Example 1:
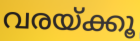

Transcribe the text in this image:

വരയ്ക്കൂ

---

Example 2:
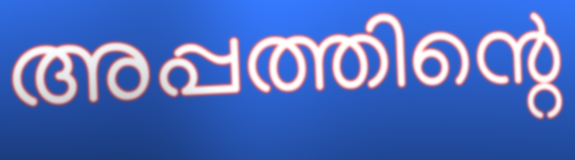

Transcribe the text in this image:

അപ്പത്തിന്റെ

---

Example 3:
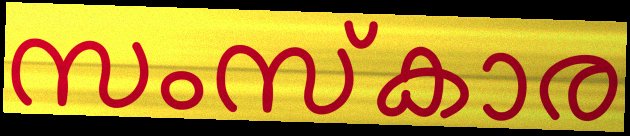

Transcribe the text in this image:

സംസ്കാര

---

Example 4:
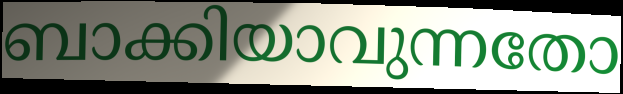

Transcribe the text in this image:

ബാക്കിയാവുന്നതോ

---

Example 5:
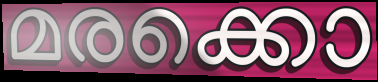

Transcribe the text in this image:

മരക്കൊ